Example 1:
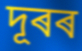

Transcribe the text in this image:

দূৰৰ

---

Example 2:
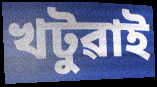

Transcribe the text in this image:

খটুৱাই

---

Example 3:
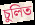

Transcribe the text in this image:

চুলিত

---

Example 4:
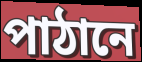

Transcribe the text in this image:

পাঠানে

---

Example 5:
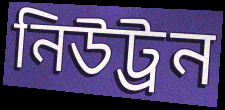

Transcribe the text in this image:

নিউট্ৰন